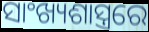
ସାଂଖ୍ୟଶାସ୍ତ୍ରରେ